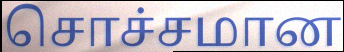
சொச்சமான